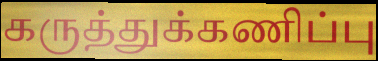
கருத்துக்கணிப்பு